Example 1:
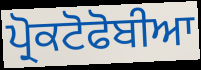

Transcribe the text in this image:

ਪ੍ਰੋਕਟੋਫੋਬੀਆ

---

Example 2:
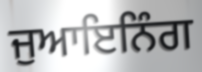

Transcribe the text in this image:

ਜੁਆਇਨਿੰਗ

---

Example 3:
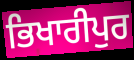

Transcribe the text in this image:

ਭਿਖਾਰੀਪੁਰ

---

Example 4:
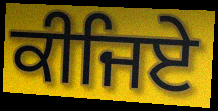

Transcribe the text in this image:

ਕੀਜਿਏ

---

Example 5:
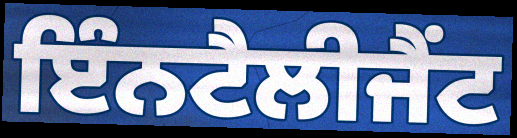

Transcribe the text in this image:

ਇੰਨਟੈਲੀਜੈਂਟ